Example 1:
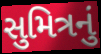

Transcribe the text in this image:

સુમિત્રનું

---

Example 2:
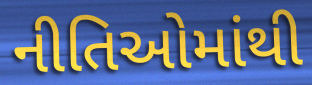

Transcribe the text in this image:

નીતિઓમાંથી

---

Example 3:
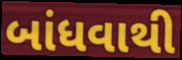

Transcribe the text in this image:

બાંધવાથી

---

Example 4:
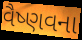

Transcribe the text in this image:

વૈષ્ણવના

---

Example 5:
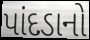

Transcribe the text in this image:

પાંદડાનો